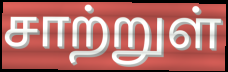
சாற்றுள்